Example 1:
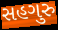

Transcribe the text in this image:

સહગુરુ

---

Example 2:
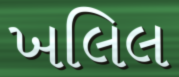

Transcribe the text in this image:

ખલિલ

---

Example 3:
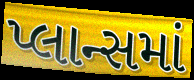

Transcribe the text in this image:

પ્લાન્સમાં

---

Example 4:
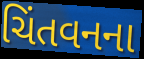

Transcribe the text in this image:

ચિંતવનના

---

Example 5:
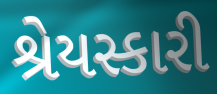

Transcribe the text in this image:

શ્રેયસ્કારી